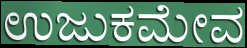
ಉಜುಕಮೇವ